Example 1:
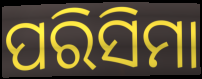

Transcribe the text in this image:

ପରିସିମା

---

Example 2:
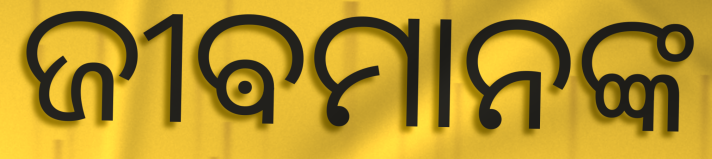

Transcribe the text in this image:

ଜୀଵମାନଙ୍କ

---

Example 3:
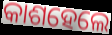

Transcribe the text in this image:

କାଶହେଲେ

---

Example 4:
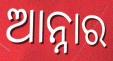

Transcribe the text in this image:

ଆନ୍ନାର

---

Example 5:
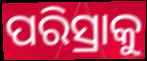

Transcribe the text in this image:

ପରିସ୍ରାକୁ